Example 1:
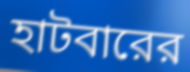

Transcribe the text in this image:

হাটবারের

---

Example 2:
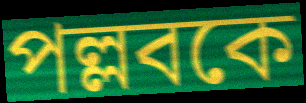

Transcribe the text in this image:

পল্লবকে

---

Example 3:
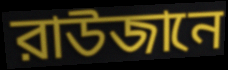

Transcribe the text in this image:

রাউজানে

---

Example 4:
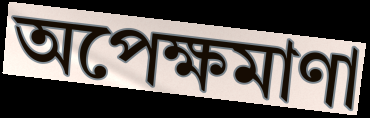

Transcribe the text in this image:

অপেক্ষমাণা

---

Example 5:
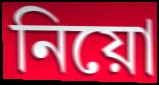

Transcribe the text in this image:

নিয়ো